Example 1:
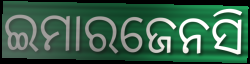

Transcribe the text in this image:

ଇମାରଜେନସି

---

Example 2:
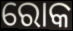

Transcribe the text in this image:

ରୋକ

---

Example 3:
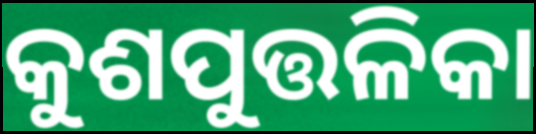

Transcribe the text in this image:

କୁଶପୁତ୍ତଳିକା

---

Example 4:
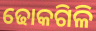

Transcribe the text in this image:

ଢୋକଗିଳି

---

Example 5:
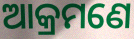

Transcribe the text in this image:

ଆକ୍ରମଣେ